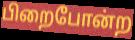
பிறைபோன்ற